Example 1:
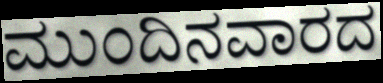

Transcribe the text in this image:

ಮುಂದಿನವಾರದ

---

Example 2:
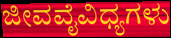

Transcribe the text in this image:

ಜೀವವೈವಿಧ್ಯಗಳು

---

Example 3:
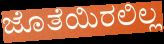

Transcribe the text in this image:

ಜೊತೆಯಿರಲಿಲ್ಲ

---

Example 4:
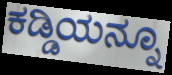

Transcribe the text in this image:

ಕಡ್ಡಿಯನ್ನೂ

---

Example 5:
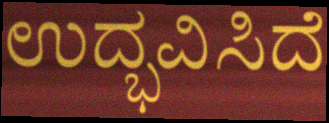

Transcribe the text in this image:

ಉದ್ಭವಿಸಿದೆ